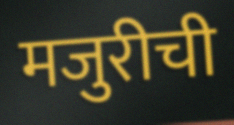
मजुरीची